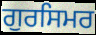
ਗੁਰਸਿਮਰ